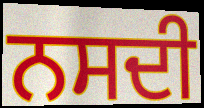
ਨਸਦੀ